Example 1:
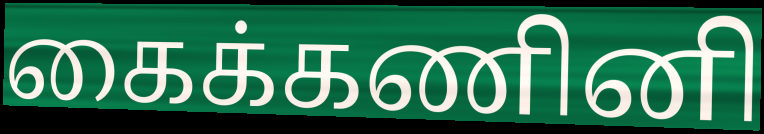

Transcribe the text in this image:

கைக்கணினி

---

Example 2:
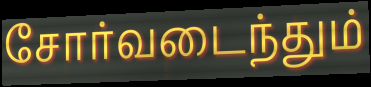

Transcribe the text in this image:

சோர்வடைந்தும்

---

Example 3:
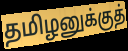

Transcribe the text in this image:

தமிழனுக்குத்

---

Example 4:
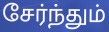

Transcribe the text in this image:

சேர்ந்தும்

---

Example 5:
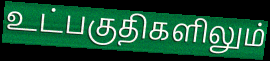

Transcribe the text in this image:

உட்பகுதிகளிலும்